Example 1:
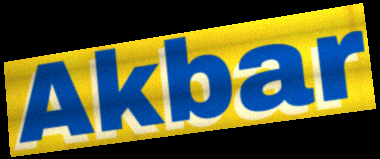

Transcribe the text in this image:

Akbar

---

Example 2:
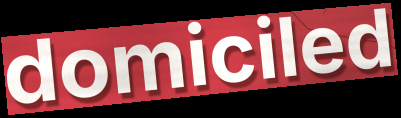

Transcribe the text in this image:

domiciled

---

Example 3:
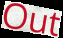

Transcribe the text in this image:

Out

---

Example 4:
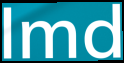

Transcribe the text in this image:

Imd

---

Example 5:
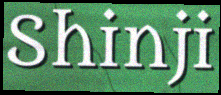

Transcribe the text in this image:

Shinji